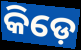
କିଡ଼େ